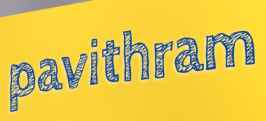
pavithram